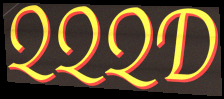
QQQD